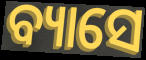
ବ୍ୟାସେ